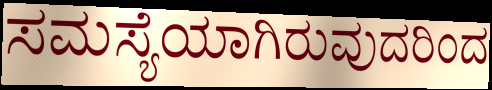
ಸಮಸ್ಯೆಯಾಗಿರುವುದರಿಂದ